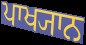
ਪਾਖ੍ਯਾਨ